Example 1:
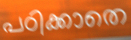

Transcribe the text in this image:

പഠിക്കാതെ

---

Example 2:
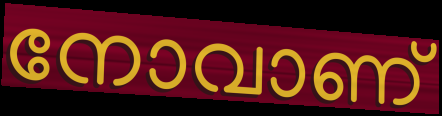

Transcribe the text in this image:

നോവാണ്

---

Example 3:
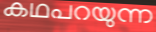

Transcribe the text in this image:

കഥപറയുന്ന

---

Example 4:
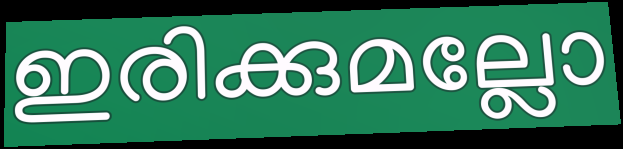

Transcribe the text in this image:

ഇരിക്കുമല്ലോ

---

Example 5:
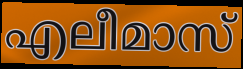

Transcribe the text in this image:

എലീമാസ്